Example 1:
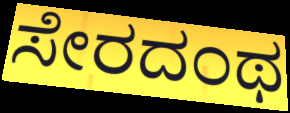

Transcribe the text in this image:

ಸೇರದಂಥ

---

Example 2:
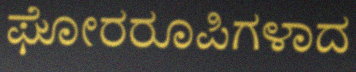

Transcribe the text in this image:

ಘೋರರೂಪಿಗಳಾದ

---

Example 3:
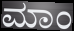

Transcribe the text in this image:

ಮಾಂ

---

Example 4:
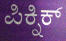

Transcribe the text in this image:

ಪಿಕ್ನಿಕ್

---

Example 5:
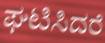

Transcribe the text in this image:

ಘಟಿಸಿದರೆ